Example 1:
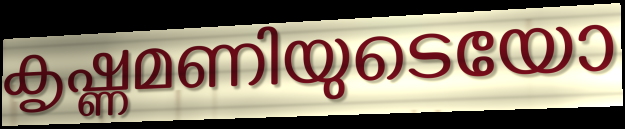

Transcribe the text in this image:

കൃഷ്ണമണിയുടെയോ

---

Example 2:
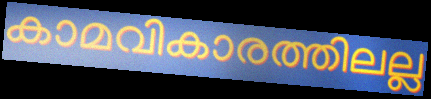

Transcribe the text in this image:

കാമവികാരത്തിലല്ല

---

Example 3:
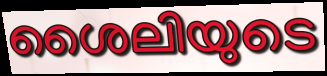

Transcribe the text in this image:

ശൈലിയുടെ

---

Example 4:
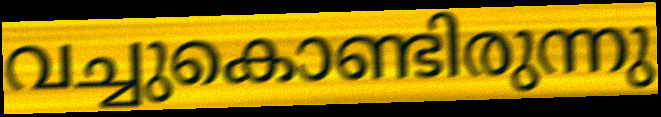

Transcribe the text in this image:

വച്ചുകൊണ്ടിരുന്നു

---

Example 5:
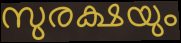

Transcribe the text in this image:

സുരക്ഷയും